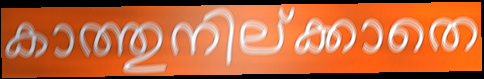
കാത്തുനില്ക്കാതെ